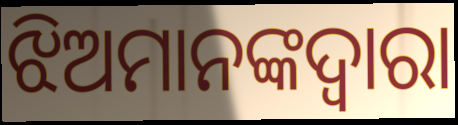
ଝିଅମାନଙ୍କଦ୍ଵାରା